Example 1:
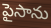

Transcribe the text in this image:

పైసాను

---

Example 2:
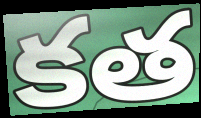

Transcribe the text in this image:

కత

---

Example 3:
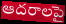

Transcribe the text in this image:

ఆదరాలపై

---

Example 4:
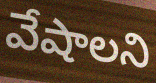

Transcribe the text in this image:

వేషాలని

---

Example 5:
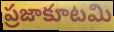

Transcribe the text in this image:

ప్రజాకూటమి